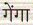
गेंगा